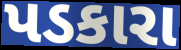
પડકારા